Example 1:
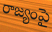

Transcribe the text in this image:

రాజ్యంపై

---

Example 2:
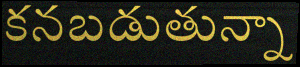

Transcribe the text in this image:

కనబడుతున్నా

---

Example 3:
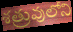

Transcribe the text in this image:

శత్రువులోని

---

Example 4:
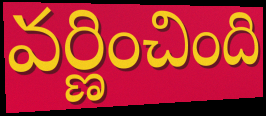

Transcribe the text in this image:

వర్ణించింది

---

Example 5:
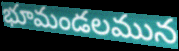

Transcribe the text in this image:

భూమండలమున